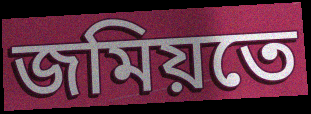
জমিয়তে